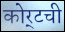
कोर्टची